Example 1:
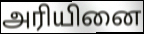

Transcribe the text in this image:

அரியினை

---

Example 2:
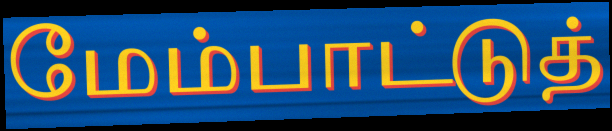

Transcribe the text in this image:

மேம்பாட்டுத்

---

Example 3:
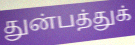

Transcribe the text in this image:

துன்பத்துக்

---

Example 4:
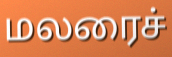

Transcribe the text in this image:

மலரைச்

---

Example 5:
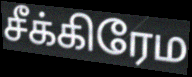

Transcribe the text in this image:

சீக்கிரேம